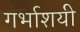
गर्भाशयी